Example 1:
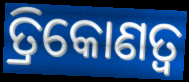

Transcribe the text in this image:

ତ୍ରିକୋଣତ୍ଵ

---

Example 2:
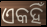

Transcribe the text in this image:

ଏକହିଁ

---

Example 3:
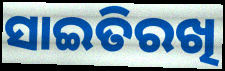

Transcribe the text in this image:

ସାଇତିରଖି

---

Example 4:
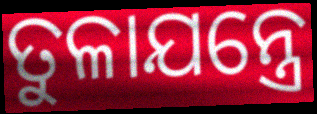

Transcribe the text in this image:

ତୁଳାଯନ୍ତ୍ରେ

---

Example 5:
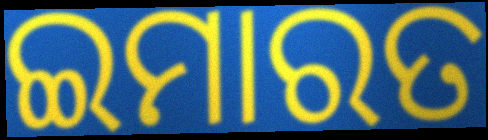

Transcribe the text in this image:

ଇମାରତ